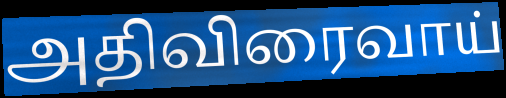
அதிவிரைவாய்